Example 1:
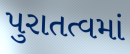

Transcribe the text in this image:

પુરાતત્વમાં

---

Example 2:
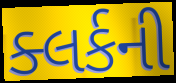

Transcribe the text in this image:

ક્લર્કની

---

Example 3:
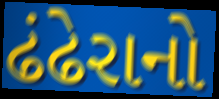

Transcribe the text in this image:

ઢંઢેરાનો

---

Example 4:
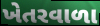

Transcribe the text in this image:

ખેતરવાળા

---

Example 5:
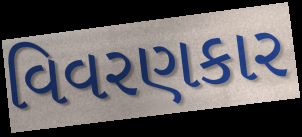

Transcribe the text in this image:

વિવરણકાર